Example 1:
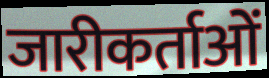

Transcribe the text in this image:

जारीकर्ताओं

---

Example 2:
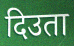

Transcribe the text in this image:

दिउता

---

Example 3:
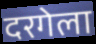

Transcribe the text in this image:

दरगेला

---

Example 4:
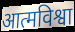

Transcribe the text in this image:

आत्मविश्वा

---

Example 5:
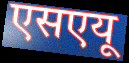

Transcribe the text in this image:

एसएयू